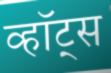
व्हॉट्‌स